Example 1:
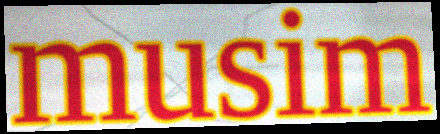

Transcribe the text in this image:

musim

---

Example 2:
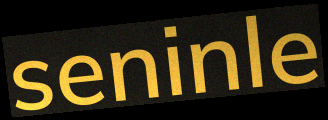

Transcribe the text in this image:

seninle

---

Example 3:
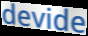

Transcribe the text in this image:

devide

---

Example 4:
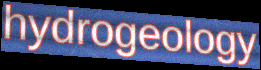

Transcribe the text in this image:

hydrogeology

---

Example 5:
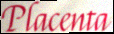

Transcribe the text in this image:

Placenta